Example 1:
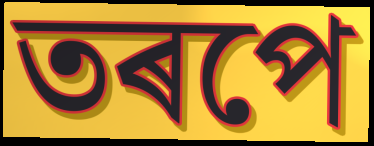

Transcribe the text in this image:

তৰপে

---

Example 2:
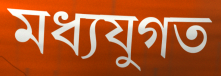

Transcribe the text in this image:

মধ্যযুগত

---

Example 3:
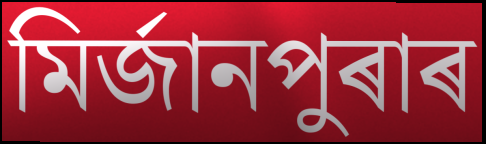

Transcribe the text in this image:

মিৰ্জানপুৰাৰ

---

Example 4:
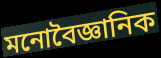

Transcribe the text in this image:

মনোবৈজ্ঞানিক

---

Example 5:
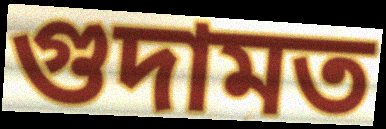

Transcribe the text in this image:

গুদামত